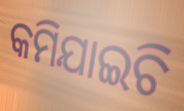
କମିଯାଇଚି